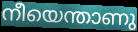
നീയെന്താണു